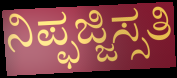
ನಿಪ್ಫಜ್ಜಿಸ್ಸತಿ